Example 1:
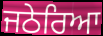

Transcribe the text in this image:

ਜਠੇਰਿਆ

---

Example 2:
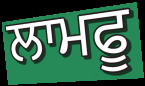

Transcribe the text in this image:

ਲਾਮਫੂ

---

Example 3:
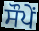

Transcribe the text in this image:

ਸੌਪੇਂ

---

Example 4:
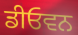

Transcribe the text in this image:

ਡੀਓਵਨ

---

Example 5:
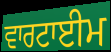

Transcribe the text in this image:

ਵਾਰਟਾਈਮ